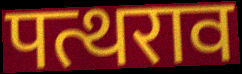
पत्थराव